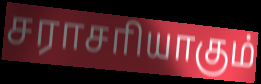
சராசரியாகும்